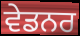
ਵੇਡਨਰ